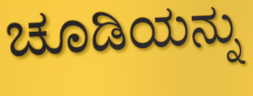
ಚೂಡಿಯನ್ನು